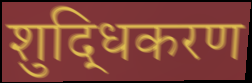
शुद्धिकरण